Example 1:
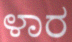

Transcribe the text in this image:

ಳಾರ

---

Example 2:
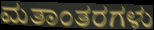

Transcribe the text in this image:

ಮತಾಂತರಗಳು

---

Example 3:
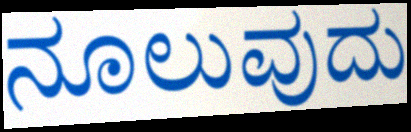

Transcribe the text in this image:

ನೂಲುವುದು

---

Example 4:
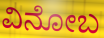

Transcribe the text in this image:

ವಿನೋಬ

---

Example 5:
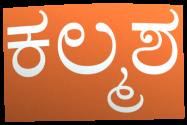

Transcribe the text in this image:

ಕಲ್ಮಶ